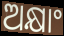
ଅକ୍ଷାଂ